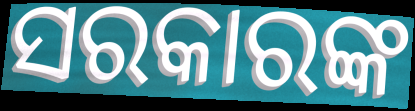
ସରକାରଙ୍କ